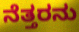
ನೆತ್ತರನು